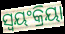
ସ୍ବୟଂକ୍ରିୟା